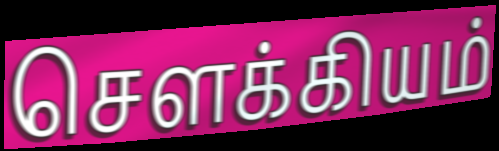
சௌக்கியம்